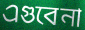
এগুবেনা